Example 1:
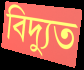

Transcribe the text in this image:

বিদ্যুত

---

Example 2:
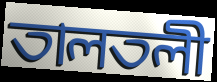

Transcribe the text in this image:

তালতলী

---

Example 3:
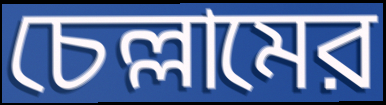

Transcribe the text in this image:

চেল্লামের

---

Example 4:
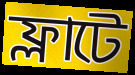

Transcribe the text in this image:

ফ্লাটে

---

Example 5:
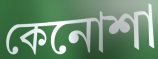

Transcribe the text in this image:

কেনোশা